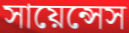
সায়েন্সেস